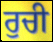
ਰੁਚੀ